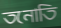
তনোতি